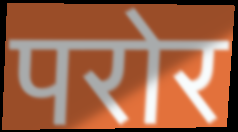
परोर